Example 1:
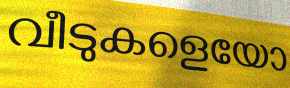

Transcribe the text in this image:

വീടുകളെയോ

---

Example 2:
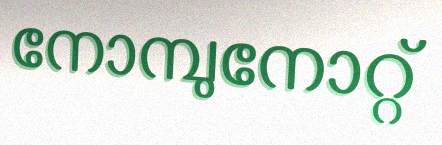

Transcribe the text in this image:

നോമ്പുനോറ്റ്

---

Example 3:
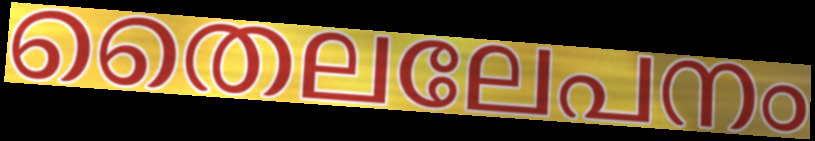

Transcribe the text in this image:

തൈലലേപനം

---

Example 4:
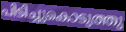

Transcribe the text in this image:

പിടിച്ചുകൊടുത്തു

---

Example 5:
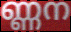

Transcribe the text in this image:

ണ്ണന